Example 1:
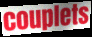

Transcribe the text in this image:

couplets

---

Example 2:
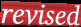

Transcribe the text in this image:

revised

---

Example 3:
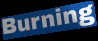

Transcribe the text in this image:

Burning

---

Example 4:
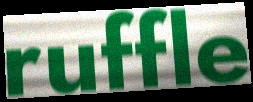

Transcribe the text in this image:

ruffle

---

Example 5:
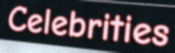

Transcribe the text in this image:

Celebrities